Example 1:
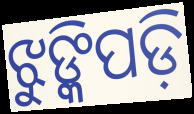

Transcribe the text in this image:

ଝୁଙ୍କିପଡ଼ି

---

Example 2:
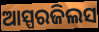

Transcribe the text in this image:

ଆସ୍ପରଜିଲସ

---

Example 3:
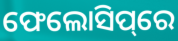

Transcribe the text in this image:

ଫେଲୋସିପ୍‌ରେ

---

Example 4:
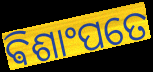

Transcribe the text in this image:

ଵିଶାଂପତେ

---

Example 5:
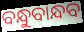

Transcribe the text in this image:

ବନ୍ଧୁବାନ୍ଧବ